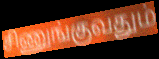
சிணுங்குவதும்